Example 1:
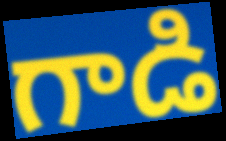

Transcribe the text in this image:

గాడి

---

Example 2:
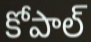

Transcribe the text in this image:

కోపాల్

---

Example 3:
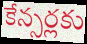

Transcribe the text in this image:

కేన్సర్లకు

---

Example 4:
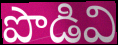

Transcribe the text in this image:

పొడివి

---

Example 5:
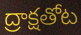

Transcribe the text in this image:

ద్రాక్షతోట